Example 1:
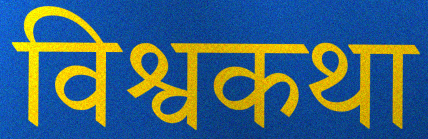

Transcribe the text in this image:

विश्वकथा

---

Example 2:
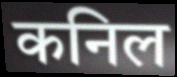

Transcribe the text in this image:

कनिल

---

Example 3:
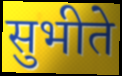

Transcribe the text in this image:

सुभीते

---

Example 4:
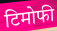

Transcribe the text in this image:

टिमोफी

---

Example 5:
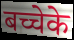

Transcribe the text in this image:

बच्चेके